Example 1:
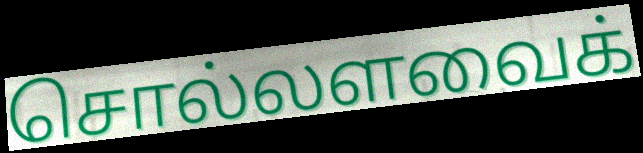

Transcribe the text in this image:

சொல்லளவைக்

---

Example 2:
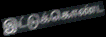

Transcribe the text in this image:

இட்டுக்கொண்ட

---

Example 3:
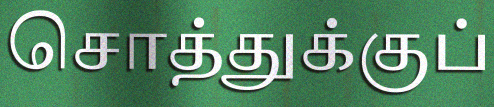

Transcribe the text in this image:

சொத்துக்குப்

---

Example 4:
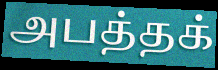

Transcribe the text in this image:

அபத்தக்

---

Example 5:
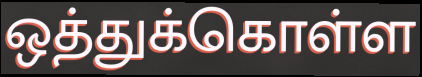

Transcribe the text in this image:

ஒத்துக்கொள்ள